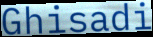
Ghisadi